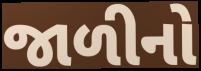
જાળીનો